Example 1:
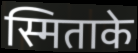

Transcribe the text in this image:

स्मिताके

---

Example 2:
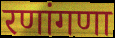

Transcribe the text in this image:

रणांगणा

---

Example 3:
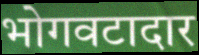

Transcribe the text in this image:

भोगवटादार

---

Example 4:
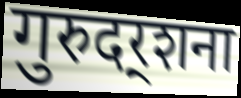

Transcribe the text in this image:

गुरुदर्शना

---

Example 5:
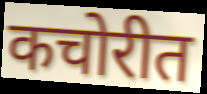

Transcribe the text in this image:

कचोरीत